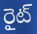
రైట్